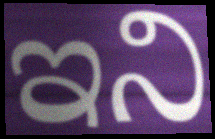
ఇని